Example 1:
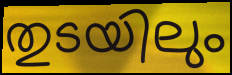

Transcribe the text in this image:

തുടയിലും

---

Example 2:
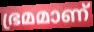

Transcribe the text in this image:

ഭ്രമമാണ്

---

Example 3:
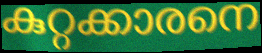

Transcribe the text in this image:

കുറ്റക്കാരനെ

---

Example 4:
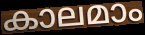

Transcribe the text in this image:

കാലമാം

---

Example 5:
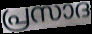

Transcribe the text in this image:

പ്രസാദ